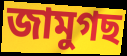
জামুগছ